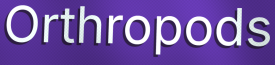
Orthropods